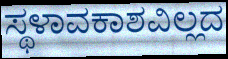
ಸ್ಥಳಾವಕಾಶವಿಲ್ಲದ